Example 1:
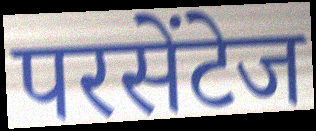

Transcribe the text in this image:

परसेंटेज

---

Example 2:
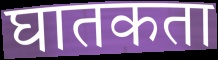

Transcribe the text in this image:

घातकता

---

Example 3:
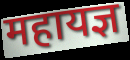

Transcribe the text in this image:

महायज्ञ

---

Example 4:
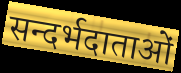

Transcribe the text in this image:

सन्दर्भदाताओं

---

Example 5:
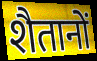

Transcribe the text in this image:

शैतानों